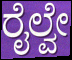
ರೈಲ್ವೇ